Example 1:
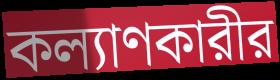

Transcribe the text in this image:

কল্যাণকারীর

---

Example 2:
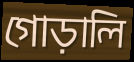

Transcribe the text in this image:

গোড়ালি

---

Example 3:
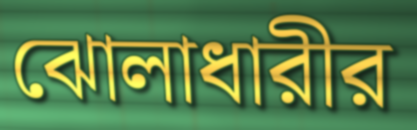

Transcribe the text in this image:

ঝোলাধারীর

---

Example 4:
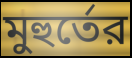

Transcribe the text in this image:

মুহুর্তের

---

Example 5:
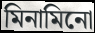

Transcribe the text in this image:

মিনামিনো